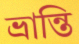
ভ্ৰান্তি